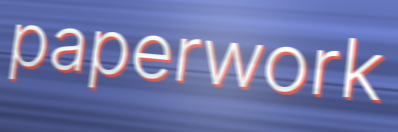
paperwork